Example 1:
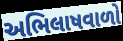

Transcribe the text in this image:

અભિલાષવાળો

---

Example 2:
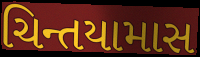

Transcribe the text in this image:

ચિન્તયામાસ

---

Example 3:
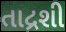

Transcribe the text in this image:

તાદ્રશી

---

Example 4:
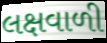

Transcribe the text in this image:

લક્ષવાળી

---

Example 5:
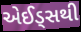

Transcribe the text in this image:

એઈડ્સથી